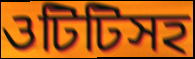
ওটিটিসহ